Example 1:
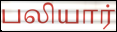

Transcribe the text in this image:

பலியார்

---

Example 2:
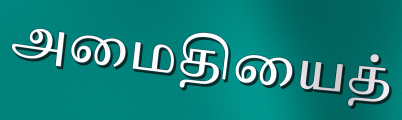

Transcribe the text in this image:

அமைதியைத்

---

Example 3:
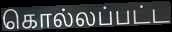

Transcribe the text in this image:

கொல்லப்பட்ட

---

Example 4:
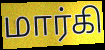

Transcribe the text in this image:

மார்கி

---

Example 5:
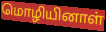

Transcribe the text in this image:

மொழியினாள்